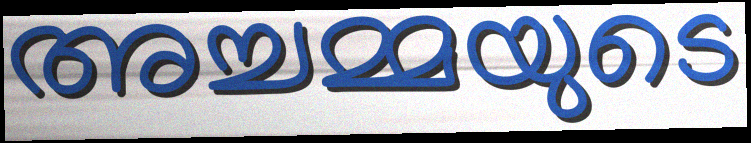
അച്ചമ്മയുടെ